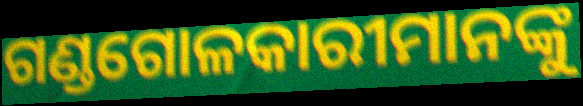
ଗଣ୍ଡଗୋଳକାରୀମାନଙ୍କୁ